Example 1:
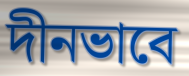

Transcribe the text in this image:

দীনভাবে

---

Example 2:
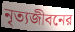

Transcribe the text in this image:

নৃত্যজীবনের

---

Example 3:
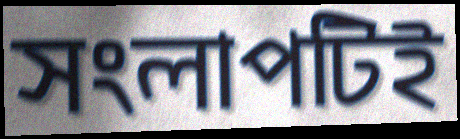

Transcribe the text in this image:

সংলাপটিই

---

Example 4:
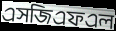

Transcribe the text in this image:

এসজিএফএল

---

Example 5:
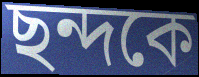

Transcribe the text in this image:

ছন্দকে